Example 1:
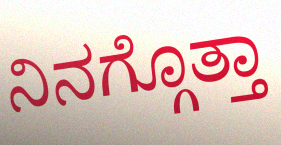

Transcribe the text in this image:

ನಿನಗ್ಗೊತ್ತಾ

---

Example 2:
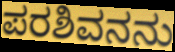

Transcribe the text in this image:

ಪರಶಿವನನು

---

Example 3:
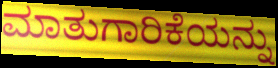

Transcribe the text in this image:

ಮಾತುಗಾರಿಕೆಯನ್ನು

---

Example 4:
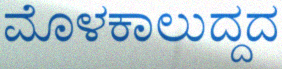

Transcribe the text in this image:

ಮೊಳಕಾಲುದ್ದದ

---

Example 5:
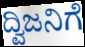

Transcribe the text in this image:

ದ್ವಿಜನಿಗೆ